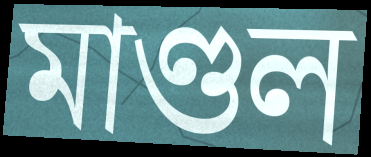
মাণ্ডল